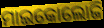
ମାଇକୋଲୋଜି